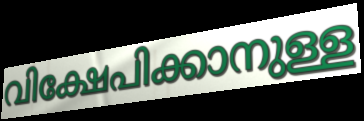
വിക്ഷേപിക്കാനുള്ള